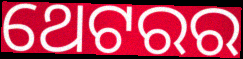
ଥେଟରର